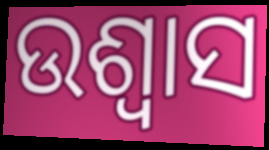
ଉଶ୍ୱାସ